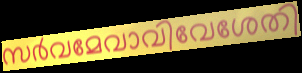
സർവമേവാവിവേശേതി